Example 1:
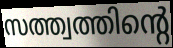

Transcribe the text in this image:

സത്ത്വത്തിന്റെ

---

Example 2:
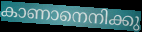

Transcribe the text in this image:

കാണാനെനിക്കു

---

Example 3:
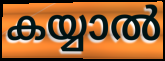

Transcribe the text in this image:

കയ്യാൽ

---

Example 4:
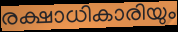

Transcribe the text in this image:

രക്ഷാധികാരിയും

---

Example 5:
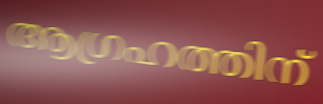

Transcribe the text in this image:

ആഗ്രഹത്തിന്